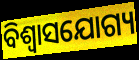
ବିଶ୍ବାସଯୋଗ୍ୟ